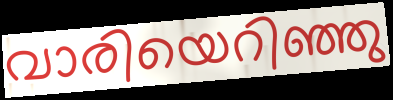
വാരിയെറിഞ്ഞു